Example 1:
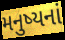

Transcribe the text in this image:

મનુષ્યનાં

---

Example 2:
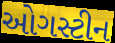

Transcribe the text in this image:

ઓગસ્ટીન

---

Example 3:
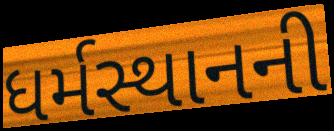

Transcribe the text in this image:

ધર્મસ્થાનની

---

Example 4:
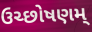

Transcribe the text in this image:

ઉચ્છોષણમ્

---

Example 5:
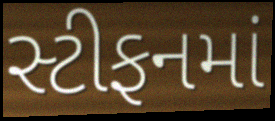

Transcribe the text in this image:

સ્ટીફનમાં